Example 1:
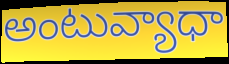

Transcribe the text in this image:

అంటువ్యాధా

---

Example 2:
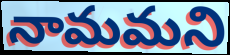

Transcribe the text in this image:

నామమని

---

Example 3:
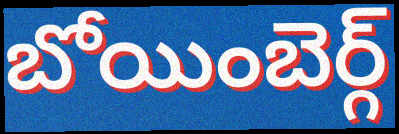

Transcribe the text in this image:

బోయింబెర్గ్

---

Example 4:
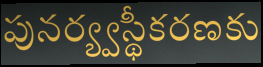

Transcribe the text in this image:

పునర్య్వస్థీకరణకు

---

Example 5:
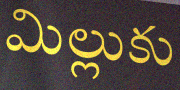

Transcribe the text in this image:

మిల్లుకు